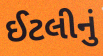
ઈટલીનું